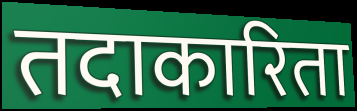
तदाकारिता